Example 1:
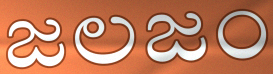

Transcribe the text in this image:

జలజం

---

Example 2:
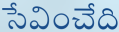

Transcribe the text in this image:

సేవించేది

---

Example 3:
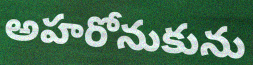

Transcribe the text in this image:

అహరోనుకును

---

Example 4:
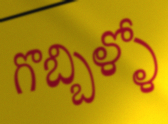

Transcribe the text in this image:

గొబ్బిళ్ళో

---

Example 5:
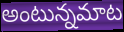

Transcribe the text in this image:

అంటున్నమాట